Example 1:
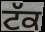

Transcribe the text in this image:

ਟੱਕ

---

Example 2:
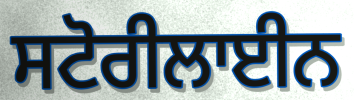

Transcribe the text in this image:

ਸਟੋਰੀਲਾਈਨ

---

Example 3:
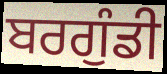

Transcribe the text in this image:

ਬਰਗੁੰਡੀ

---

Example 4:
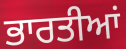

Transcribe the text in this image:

ਭਾਰਤੀਆਂ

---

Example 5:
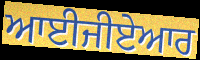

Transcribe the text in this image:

ਆਈਜੀਏਆਰ